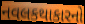
નવલકથાકારનો